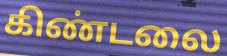
கிண்டலை